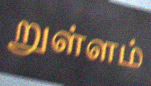
றுள்ளம்